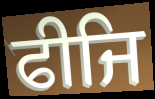
ਫੀਜਿ